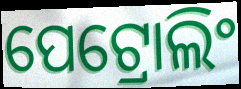
ପେଟ୍ରୋଲିଂ